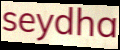
seydha